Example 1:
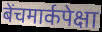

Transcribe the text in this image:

बेंचमार्कपेक्षा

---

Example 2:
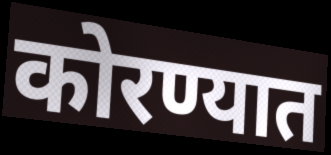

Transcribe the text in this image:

कोरण्यात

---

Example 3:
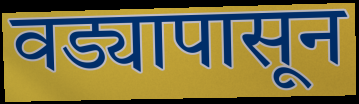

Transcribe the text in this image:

वड्यापासून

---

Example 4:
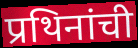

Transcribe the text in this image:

प्रथिनांची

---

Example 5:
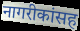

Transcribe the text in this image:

नागरीकांसह